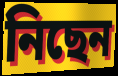
নিছেন